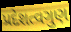
પ્રદેશત્વગુણ